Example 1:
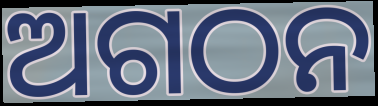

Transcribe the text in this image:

ଅଗଠନ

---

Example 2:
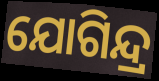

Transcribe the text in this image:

ଯୋଗିନ୍ଦ୍ର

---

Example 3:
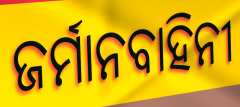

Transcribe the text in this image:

ଜର୍ମାନବାହିନୀ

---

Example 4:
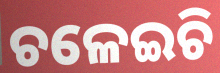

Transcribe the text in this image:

ଚଳେଇଚି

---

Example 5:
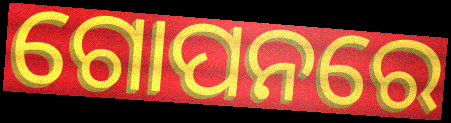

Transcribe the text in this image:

ଗୋପନରେ